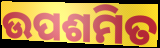
ଉପଶମିତ